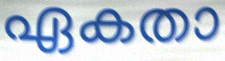
ഏകതാ